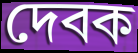
দেবক